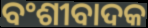
ବଂଶୀବାଦକ